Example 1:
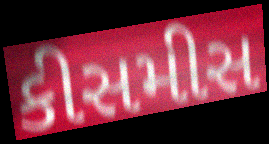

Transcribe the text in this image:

કીસમીસ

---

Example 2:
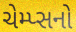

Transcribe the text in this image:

ચેમ્પ્સનો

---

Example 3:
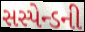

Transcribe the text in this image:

સસ્પેન્ડની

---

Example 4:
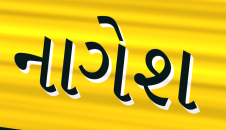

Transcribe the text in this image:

નાગેશ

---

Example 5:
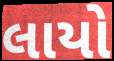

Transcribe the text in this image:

લાયો